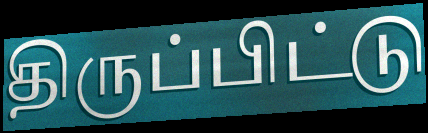
திருப்பிட்டு